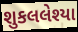
શુકલલેશ્યા